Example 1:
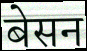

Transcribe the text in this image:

बेसन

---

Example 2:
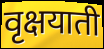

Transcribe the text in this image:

वृक्षयाती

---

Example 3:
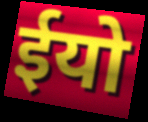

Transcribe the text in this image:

ईयो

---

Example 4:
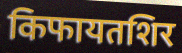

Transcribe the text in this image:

किफायतशिर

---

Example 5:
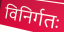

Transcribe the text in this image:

विनिर्गतः